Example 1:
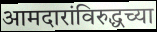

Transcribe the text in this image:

आमदारांविरुद्धच्या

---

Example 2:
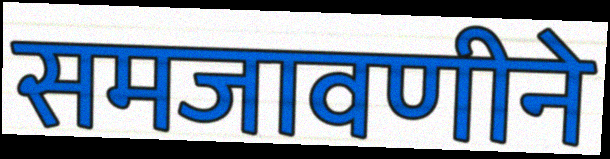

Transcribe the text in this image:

समजावणीने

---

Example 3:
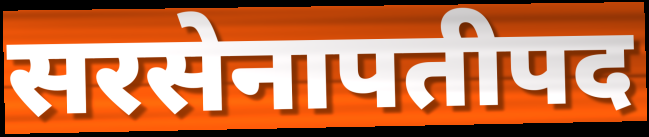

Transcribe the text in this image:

सरसेनापतीपद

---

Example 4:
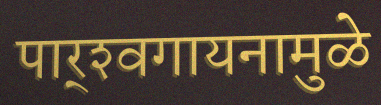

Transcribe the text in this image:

पार्श्वगायनामुळे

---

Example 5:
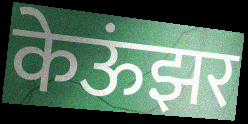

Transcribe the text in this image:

केऊंझर